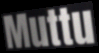
Muttu